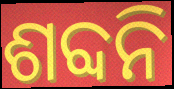
ଶବ୍ଦନି